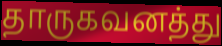
தாருகவனத்து